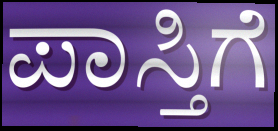
ಪಾಸ್ತಿಗೆ